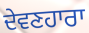
ਦੇਵਣਹਾਰਾ